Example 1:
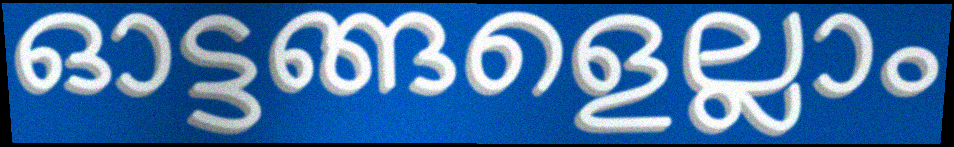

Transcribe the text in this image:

ഓട്ടങ്ങളെല്ലാം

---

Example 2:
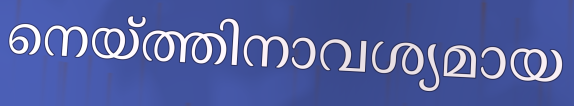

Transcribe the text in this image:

നെയ്ത്തിനാവശ്യമായ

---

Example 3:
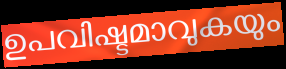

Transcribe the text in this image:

ഉപവിഷ്ടമാവുകയും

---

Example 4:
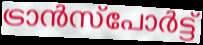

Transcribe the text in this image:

ട്രാൻസ്‌പോർട്ട്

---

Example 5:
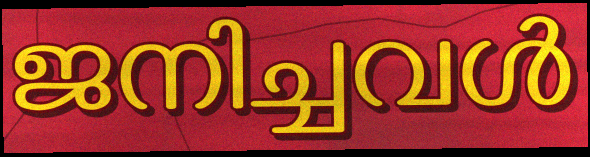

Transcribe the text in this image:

ജനിച്ചവൾ